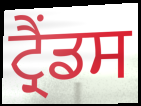
ਟ੍ਰੈਂਡਸ